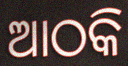
ଆଠକି